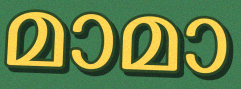
മാമാ